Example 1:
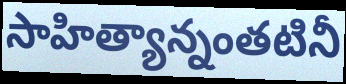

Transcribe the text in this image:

సాహిత్యాన్నంతటినీ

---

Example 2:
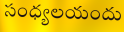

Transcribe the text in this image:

సంధ్యలయందు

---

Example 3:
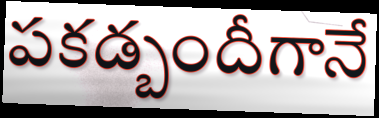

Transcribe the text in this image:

పకడ్బందీగానే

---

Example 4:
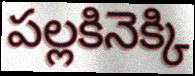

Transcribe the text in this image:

పల్లకినెక్కి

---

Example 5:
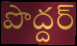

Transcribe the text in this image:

పొద్దర్